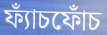
ফ্যাঁচফোঁচ